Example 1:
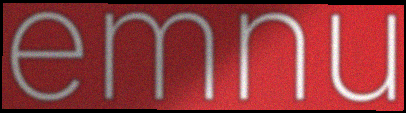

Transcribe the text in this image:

emnu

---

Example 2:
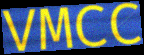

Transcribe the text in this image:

VMCC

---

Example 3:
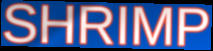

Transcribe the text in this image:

SHRIMP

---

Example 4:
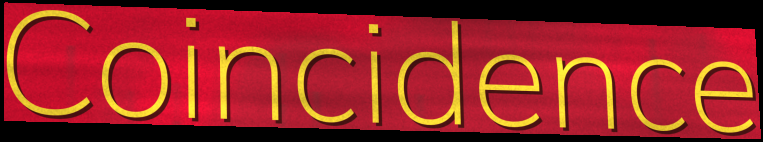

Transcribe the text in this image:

Coincidence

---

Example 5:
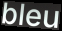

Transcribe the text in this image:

bleu